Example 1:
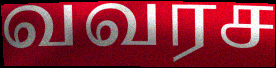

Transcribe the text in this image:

வவரச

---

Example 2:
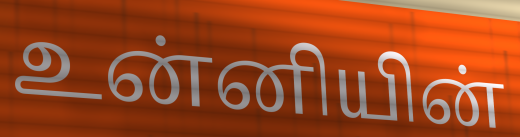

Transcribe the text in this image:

உன்னியின்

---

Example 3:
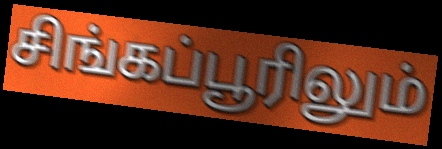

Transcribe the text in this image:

சிங்கப்பூரிலும்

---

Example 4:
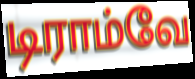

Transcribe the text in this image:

டிராம்வே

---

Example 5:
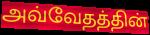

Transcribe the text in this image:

அவ்வேதத்தின்